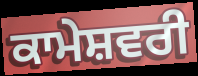
ਕਾਮੇਸ਼ਵਰੀ